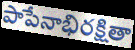
పాపేనాభిరక్షితా